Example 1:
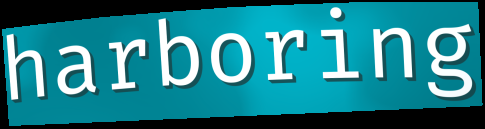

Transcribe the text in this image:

harboring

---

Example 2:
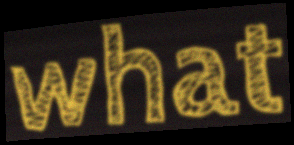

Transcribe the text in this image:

what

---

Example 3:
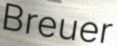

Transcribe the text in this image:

Breuer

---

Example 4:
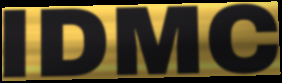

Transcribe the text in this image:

IDMC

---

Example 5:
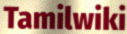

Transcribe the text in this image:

Tamilwiki